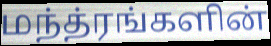
மந்த்ரங்களின்